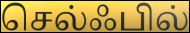
செல்ஃபில்